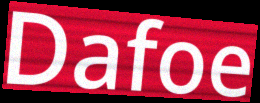
Dafoe